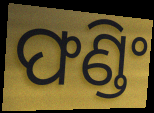
ଫଣ୍ଡିଂ